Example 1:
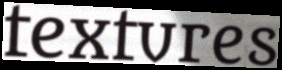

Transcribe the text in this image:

textures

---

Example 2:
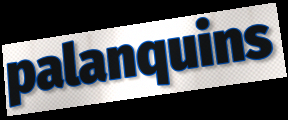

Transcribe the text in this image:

palanquins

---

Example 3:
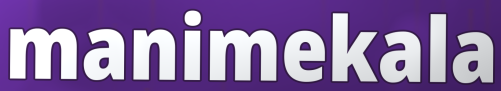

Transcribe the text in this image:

manimekala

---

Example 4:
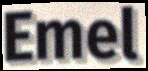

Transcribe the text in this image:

Emel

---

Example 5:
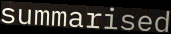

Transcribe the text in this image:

summarised